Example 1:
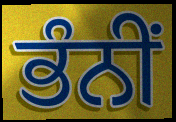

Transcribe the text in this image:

ਭੰਨੀਂ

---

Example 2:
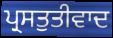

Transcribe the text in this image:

ਪ੍ਰਸਤੁਤੀਵਾਦ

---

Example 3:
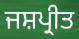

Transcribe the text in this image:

ਜਸ਼ਪ੍ਰੀਤ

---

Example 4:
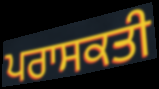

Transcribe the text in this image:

ਪਰਾਸਕਤੀ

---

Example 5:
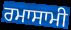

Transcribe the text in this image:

ਰਮਾਸਾਮੀ